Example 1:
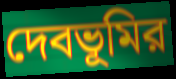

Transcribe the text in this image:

দেবভূমির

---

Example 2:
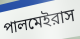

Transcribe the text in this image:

পালমেইরাস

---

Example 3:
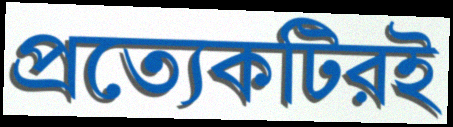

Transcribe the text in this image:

প্রত্যেকটিরই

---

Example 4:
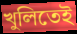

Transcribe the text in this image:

খুলিতেই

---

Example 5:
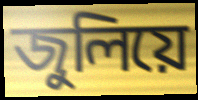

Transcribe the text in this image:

জুলিয়ে